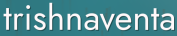
trishnaventa